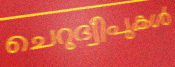
ചെറുദ്വീപുകൾ